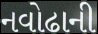
નવોઢાની